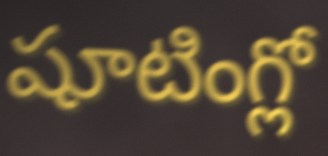
షూటింగ్లో